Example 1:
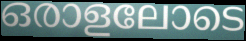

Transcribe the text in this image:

ഒരാളലോടെ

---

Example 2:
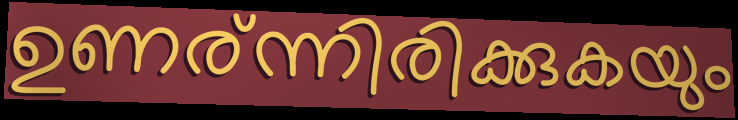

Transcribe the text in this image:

ഉണര്ന്നിരിക്കുകയും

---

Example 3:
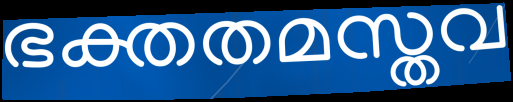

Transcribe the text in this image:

ഭക്തതമസ്തവ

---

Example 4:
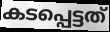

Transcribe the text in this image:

കടപ്പെട്ടത്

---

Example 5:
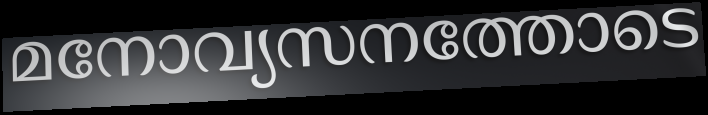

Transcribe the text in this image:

മനോവ്യസനത്തോടെ